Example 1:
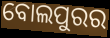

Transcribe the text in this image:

ବୋଲପୁରର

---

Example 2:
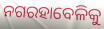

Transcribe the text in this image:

ନଗରହାବେଳିକୁ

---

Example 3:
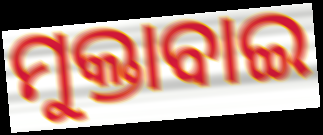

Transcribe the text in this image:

ମୁକ୍ତାବାଇ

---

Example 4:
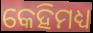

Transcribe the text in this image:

କେହିମଧ୍ୟ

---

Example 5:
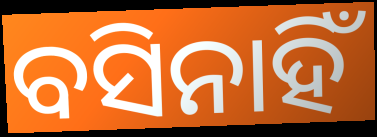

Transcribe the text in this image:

ବସିନାହିଁ